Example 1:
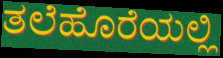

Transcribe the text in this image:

ತಲೆಹೊರೆಯಲ್ಲಿ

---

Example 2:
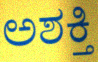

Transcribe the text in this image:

ಅಶಕ್ತಿ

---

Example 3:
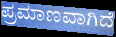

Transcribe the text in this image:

ಪ್ರಮಾಣವಾಗಿದೆ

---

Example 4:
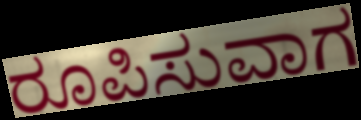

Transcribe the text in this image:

ರೂಪಿಸುವಾಗ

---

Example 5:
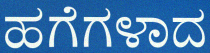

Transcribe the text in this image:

ಹಗೆಗಳಾದ